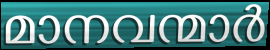
മാനവന്മാർ